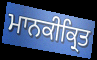
ਮਾਨਕੀਕ੍ਰਿਤ